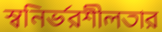
স্বনির্ভরশীলতার